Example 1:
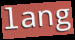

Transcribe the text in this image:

lang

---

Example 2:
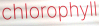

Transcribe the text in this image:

chlorophyll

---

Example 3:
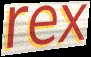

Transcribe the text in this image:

rex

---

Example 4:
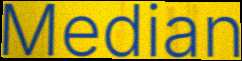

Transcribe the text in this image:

Median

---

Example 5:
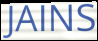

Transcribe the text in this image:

JAINS